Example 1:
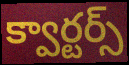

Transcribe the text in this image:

క్వార్టర్స్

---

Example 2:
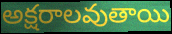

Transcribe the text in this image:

అక్షరాలవుతాయి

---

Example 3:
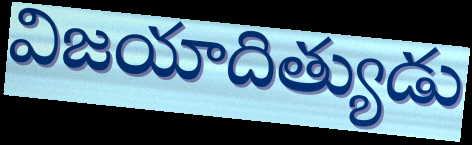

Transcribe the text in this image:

విజయాదిత్యుడు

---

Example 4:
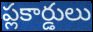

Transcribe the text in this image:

ప్లకార్డులు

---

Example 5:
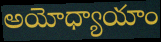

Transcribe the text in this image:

అయోధ్యాయాం